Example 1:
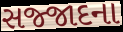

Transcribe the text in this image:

સજ્જાદના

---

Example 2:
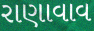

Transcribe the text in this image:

રાણાવાવ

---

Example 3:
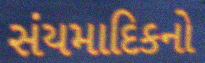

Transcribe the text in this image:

સંયમાદિકનો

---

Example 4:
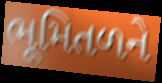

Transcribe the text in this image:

ભૂમિતળને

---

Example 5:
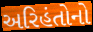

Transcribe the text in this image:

અરિહંતોનો